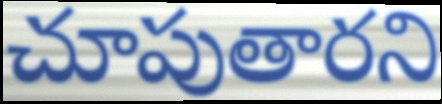
చూపుతారని